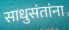
साधुसंतांना